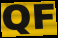
QF